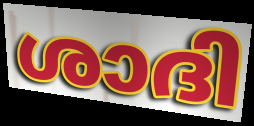
ശാദി